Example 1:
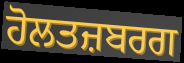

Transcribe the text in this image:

ਹੋਲਤਜ਼ਬਰਗ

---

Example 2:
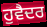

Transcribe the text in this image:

ਹੁਵੈਦਰ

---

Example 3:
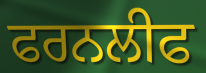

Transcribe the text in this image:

ਫਰਨਲੀਫ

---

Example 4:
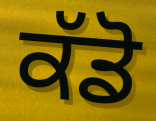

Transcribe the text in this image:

ਕੱਡੋ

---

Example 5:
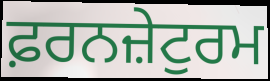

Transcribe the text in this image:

ਫ਼ਰਨਜ਼ੇਟੁਰਮ